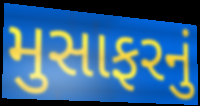
મુસાફરનું